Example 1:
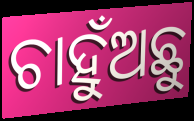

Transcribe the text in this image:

ଚାହୁଁଅଛୁ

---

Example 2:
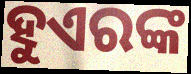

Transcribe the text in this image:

ହୁଏରଙ୍କ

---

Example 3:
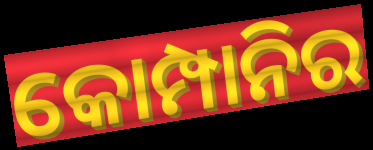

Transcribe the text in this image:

କୋମ୍ପାନିର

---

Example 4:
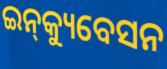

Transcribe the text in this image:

ଇନ୍‌କ୍ୟୁବେସନ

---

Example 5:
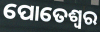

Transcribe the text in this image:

ପୋତେଶ୍ବର